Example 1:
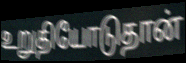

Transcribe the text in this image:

உறுதியோடுதான்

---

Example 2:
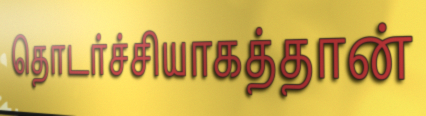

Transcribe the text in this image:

தொடர்ச்சியாகத்தான்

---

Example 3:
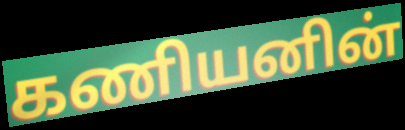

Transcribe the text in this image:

கணியனின்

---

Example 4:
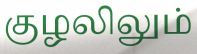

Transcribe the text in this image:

குழலிலும்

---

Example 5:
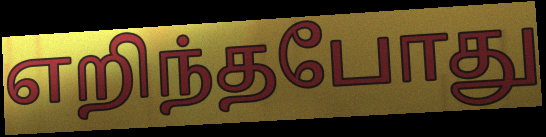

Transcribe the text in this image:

எறிந்தபோது